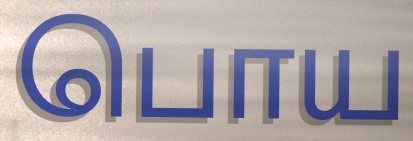
பொய